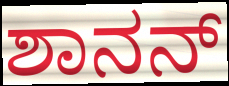
ಶಾನನ್